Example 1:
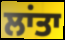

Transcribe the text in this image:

ਲਾਂਤਾ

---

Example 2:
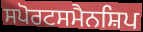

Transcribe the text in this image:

ਸਪੋਰਟਸਮੈਨਸ਼ਿਪ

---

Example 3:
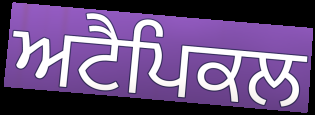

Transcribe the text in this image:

ਅਟੈਪਿਕਲ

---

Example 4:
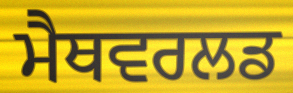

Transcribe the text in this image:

ਮੈਥਵਰਲਡ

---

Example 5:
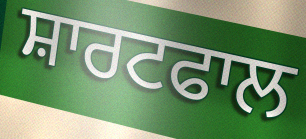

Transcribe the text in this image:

ਸ਼ਾਰਟਫਾਲ